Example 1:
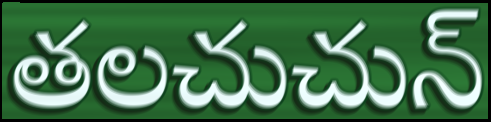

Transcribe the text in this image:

తలచుచున్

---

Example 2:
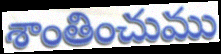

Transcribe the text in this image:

శాంతించుము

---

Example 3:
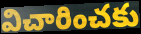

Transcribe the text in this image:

విచారించకు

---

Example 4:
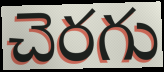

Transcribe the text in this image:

చెరగు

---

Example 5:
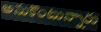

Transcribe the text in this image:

అనుకొంటున్నారు